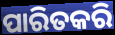
ପାରିତକରି